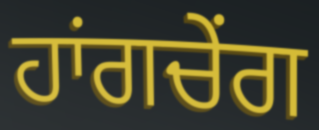
ਹਾਂਗਚੇਂਗ